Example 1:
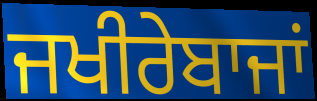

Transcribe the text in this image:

ਜਖੀਰੇਬਾਜਾਂ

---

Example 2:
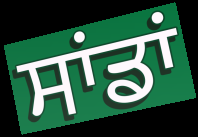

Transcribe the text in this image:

ਸਾਂਡਾਂ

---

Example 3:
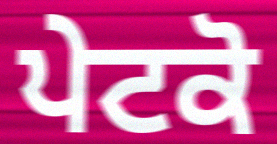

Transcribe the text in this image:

ਪੇਟਕੋ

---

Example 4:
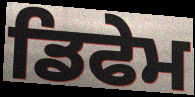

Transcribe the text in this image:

ਡਿਫੇਮ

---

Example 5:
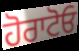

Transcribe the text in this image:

ਹੋਰਾਟੋਓ